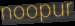
noopur